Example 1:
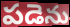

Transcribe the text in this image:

పడెను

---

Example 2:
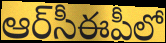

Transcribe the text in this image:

ఆర్‌సీఈపీలో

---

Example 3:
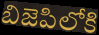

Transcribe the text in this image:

బిజెపిలోకి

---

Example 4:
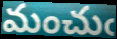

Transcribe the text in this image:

మంచుఁ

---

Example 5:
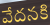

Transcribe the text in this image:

వేదనకి